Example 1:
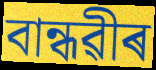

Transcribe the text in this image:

বান্ধৱীৰ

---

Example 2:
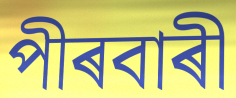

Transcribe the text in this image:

পীৰবাৰী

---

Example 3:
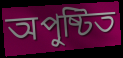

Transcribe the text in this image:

অপুষ্টিত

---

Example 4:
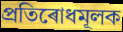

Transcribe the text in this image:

প্ৰতিৰোধমূলক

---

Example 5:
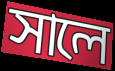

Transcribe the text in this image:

সালে